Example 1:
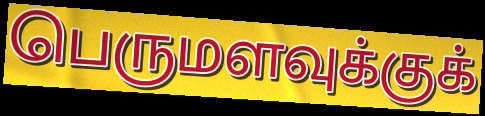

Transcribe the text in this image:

பெருமளவுக்குக்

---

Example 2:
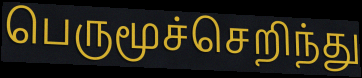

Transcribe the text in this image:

பெருமூச்செறிந்து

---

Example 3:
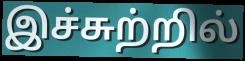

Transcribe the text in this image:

இச்சுற்றில்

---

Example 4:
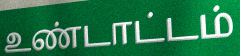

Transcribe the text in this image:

உண்டாட்டம்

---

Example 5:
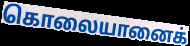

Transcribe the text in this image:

கொலையானைக்